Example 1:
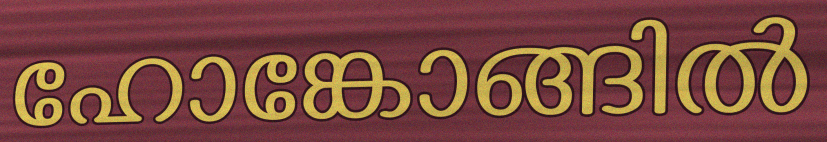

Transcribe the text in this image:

ഹോങ്കോങ്ങിൽ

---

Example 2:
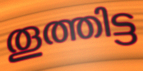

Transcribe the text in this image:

തൂത്തിട്ട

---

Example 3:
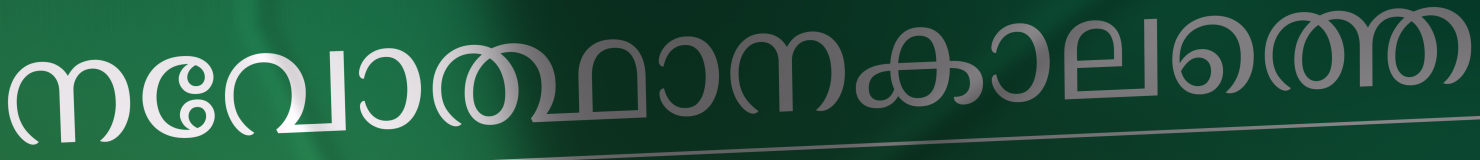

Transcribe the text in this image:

നവോത്ഥാനകാലത്തെ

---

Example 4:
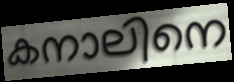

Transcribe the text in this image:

കനാലിനെ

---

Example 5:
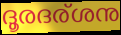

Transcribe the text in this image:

ദൂരദര്ശനു